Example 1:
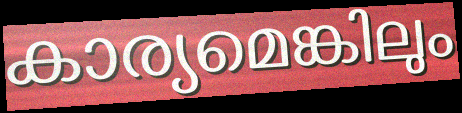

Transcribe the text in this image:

കാര്യമെങ്കിലും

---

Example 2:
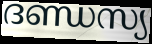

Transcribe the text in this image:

ദണ്ഡസ്യ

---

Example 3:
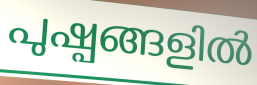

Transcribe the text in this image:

പുഷ്പങ്ങളിൽ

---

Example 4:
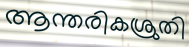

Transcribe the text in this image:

ആന്തരികശ്രുതി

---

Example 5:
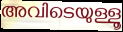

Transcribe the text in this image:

അവിടെയുള്ളൂ